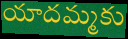
యాదమ్మకు